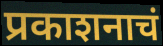
प्रकाशनाचं